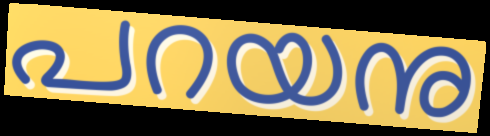
പറയനു